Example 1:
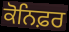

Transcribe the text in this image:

ਕੋਨਿਫ਼ਰ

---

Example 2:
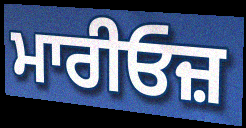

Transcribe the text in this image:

ਮਾਰੀਓਜ਼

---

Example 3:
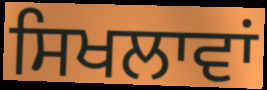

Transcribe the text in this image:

ਸਿਖਲਾਵਾਂ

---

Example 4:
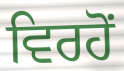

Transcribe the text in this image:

ਵਿਰਹੋਂ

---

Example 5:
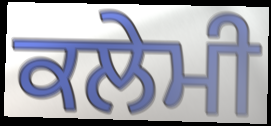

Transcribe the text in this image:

ਕਲੇਮੀ